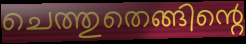
ചെത്തുതെങ്ങിന്റെ